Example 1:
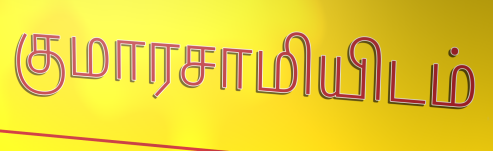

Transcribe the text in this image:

குமாரசாமியிடம்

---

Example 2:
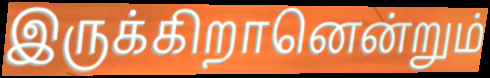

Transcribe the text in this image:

இருக்கிறானென்றும்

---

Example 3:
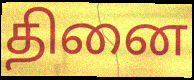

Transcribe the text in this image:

தினை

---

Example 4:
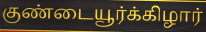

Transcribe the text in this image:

குண்டையூர்க்கிழார்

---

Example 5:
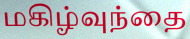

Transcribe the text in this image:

மகிழ்வுந்தை